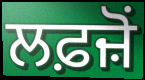
ਲਫ਼ਜ਼ੋਂ